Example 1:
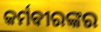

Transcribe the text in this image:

କର୍ମବୀରଙ୍କର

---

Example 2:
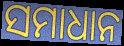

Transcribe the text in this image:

ସମାଧାନ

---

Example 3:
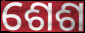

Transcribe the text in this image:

ଶେଶ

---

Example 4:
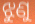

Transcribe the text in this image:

ଝୁଣୁ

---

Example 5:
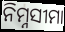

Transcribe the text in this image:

ନିମ୍ନସୀମା